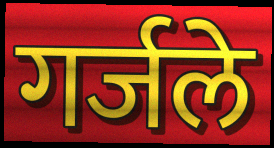
गर्जले